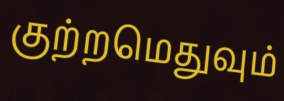
குற்றமெதுவும்